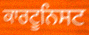
ਕਾਰਟੂਨਿਸਟ